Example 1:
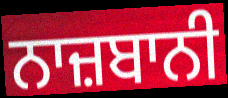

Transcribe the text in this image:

ਨਾਜ਼ਬਾਨੀ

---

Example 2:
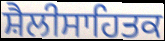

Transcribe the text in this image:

ਸ਼ੈਲੀਸਾਹਿਤਕ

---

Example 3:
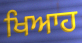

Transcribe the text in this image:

ਖਿਆਹ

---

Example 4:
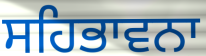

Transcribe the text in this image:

ਸਹਿਭਾਵਨਾ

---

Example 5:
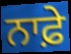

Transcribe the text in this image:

ਨਾਫ਼ੇ